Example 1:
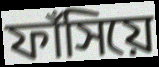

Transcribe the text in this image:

ফাঁসিয়ে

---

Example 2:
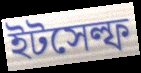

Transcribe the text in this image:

ইটসেল্ফ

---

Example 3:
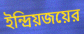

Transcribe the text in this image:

ইন্দ্রিয়জয়ের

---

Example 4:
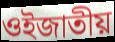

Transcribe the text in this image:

ওইজাতীয়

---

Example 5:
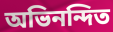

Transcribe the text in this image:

অভিনন্দিত